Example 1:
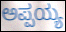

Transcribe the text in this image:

ಅಪ್ಪಯ್ಯ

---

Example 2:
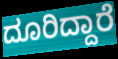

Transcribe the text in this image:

ದೂರಿದ್ದಾರೆ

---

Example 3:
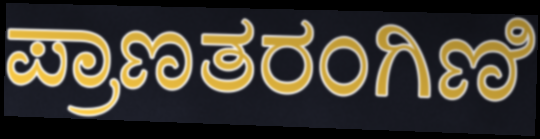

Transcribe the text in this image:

ಪ್ರಾಣತರಂಗಿಣಿ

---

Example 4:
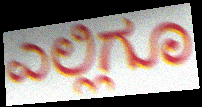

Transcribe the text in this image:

ಎಲ್ಲಿಗೂ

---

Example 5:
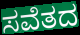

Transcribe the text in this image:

ಸವೆತದ